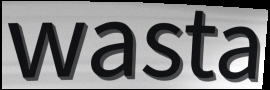
wasta